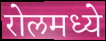
रोलमध्ये